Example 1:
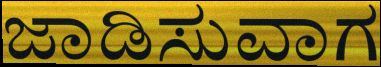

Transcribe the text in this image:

ಜಾಡಿಸುವಾಗ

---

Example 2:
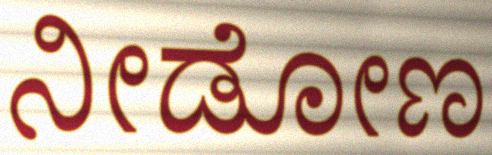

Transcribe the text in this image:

ನೀಡೋಣ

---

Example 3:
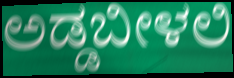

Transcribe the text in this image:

ಅಡ್ಡಬೀಳಲಿ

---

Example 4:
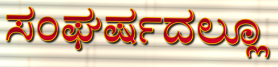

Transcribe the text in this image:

ಸಂಘರ್ಷದಲ್ಲೂ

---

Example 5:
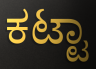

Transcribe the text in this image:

ಕಟ್ಟಾ